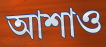
আশাও